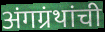
अंगग्रंथांची